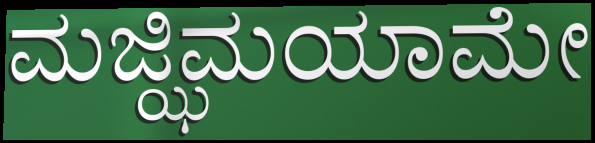
ಮಜ್ಝಿಮಯಾಮೇ